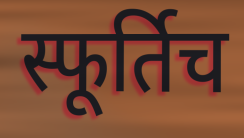
स्फूर्तिच